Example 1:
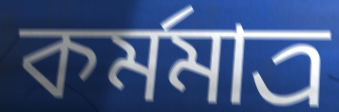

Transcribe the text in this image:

কর্মমাত্র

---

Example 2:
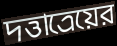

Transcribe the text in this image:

দত্তাত্রেয়ের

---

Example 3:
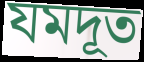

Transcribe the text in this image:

যমদূত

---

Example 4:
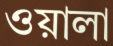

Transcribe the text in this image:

ওয়ালা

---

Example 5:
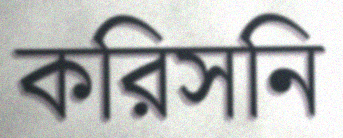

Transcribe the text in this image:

করিসনি